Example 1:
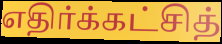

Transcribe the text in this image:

எதிர்க்கட்சித்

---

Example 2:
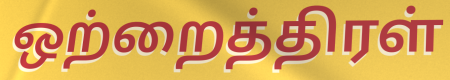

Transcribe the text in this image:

ஒற்றைத்திரள்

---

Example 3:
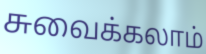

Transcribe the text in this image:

சுவைக்கலாம்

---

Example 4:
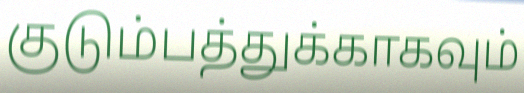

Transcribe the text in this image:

குடும்பத்துக்காகவும்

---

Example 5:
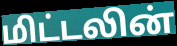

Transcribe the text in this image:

மிட்டலின்